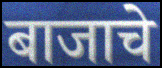
बाजाचे